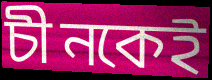
চীনকেই